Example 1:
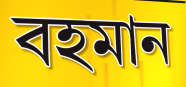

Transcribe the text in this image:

বহমান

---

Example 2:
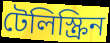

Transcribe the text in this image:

টেলিস্ক্রিন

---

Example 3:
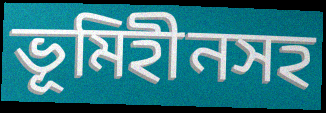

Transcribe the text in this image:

ভূমিহীনসহ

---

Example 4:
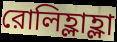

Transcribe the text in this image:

রোলিহ্লাহ্লা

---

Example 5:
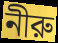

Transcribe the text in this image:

নীরু